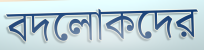
বদলোকদের